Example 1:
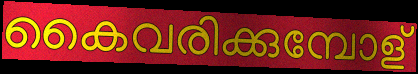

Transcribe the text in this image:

കൈവരിക്കുമ്പോള്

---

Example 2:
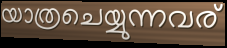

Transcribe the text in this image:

യാത്രചെയ്യുന്നവര്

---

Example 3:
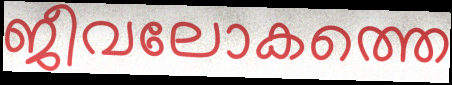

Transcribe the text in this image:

ജീവലോകത്തെ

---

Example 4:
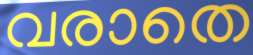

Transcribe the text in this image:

വരാതെ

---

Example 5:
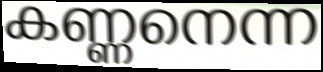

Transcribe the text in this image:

കണ്ണനെന്ന